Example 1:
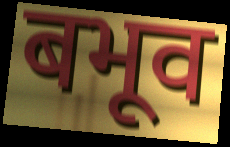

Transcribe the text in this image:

बभूव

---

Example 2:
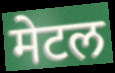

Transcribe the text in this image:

मेटल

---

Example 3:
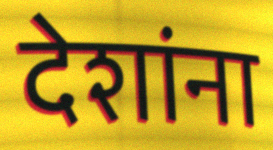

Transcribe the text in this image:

देशांना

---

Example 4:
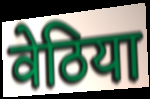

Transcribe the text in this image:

वेठिया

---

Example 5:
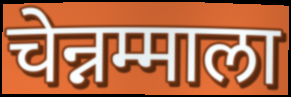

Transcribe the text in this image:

चेन्नम्माला